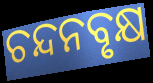
ଚନ୍ଦନବୃକ୍ଷ